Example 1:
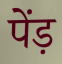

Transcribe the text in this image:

पेंड़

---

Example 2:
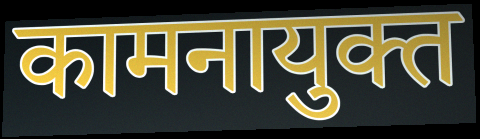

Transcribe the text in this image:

कामनायुक्त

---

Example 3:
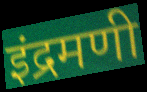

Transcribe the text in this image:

इंद्रमणी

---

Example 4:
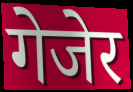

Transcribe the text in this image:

गेजेर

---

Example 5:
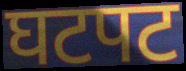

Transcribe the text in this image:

घटपट